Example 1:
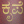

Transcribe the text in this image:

ಕೃಪೆ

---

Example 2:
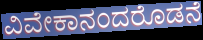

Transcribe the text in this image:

ವಿವೇಕಾನಂದರೊಡನೆ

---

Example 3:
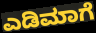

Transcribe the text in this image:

ಎಡಿಮಾಗೆ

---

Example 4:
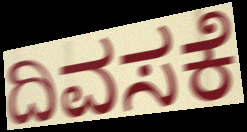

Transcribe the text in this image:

ದಿವಸಕೆ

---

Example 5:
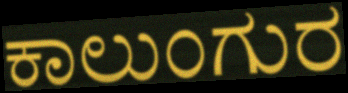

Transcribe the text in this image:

ಕಾಲುಂಗುರ